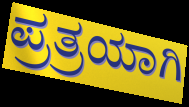
ಪ್ರತ್ರಯಾಗಿ